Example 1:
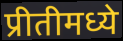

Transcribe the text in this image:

प्रीतीमध्ये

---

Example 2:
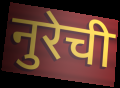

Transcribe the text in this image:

नुरेची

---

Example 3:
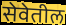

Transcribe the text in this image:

सेवेतील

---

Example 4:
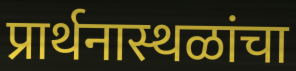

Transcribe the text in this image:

प्रार्थनास्थळांचा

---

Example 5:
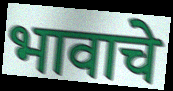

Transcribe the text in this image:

भावाचे